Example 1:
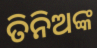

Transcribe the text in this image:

ତିନିଅଙ୍କ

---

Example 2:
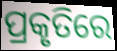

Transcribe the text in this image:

ପ୍ରକୃତିରେ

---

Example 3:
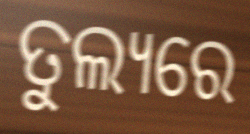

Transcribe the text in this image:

ତୁଲ୍ୟରେ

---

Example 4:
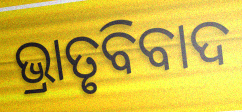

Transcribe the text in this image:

ଭ୍ରାତୃବିବାଦ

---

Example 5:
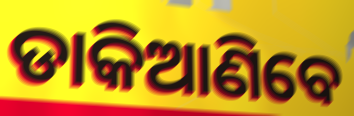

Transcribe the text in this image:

ଡାକିଆଣିବେ